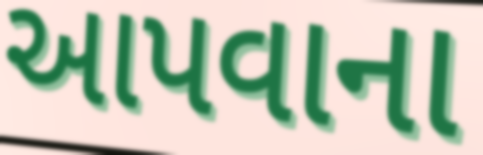
આપવાના